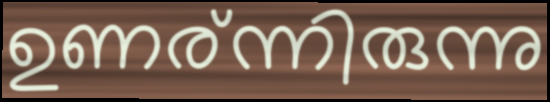
ഉണര്ന്നിരുന്നു